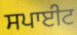
ਸਪਾਈਟ